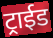
ट्राईड